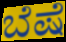
ಬೆಷೆ